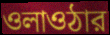
ওলাওঠার